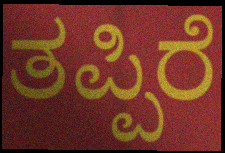
ತಪ್ಪಿರೆ